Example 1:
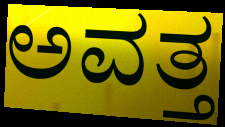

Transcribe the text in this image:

ಅವತ್ತ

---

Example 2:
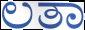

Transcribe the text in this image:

ಲತಾ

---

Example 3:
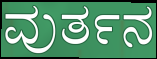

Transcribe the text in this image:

ವುರ್ತನ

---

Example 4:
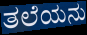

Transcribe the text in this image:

ತಲೆಯನು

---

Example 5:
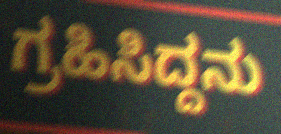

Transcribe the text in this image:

ಗ್ರಹಿಸಿದ್ದನು